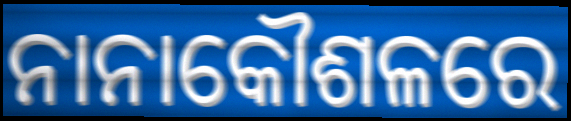
ନାନାକୌଶଳରେ